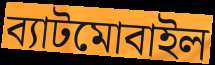
ব্যাটমোবাইল